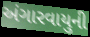
અંગારવાયુની